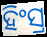
ହିଂସ୍ର